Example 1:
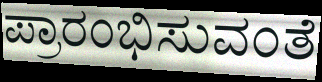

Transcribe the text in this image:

ಪ್ರಾರಂಭಿಸುವಂತೆ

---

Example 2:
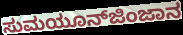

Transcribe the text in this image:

ಸುಮಯೂನ್‍ಜಿಂಜಾನ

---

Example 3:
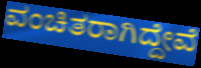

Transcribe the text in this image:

ವಂಚಿತರಾಗಿದ್ದೇವೆ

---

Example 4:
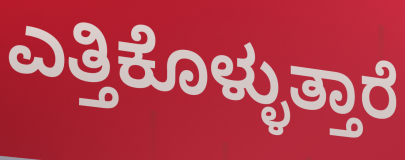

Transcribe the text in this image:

ಎತ್ತಿಕೊಳ್ಳುತ್ತಾರೆ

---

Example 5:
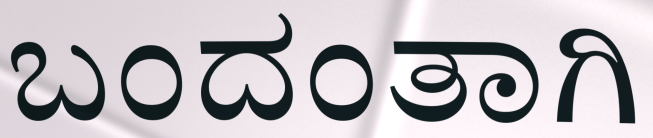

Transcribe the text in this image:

ಬಂದಂತಾಗಿ